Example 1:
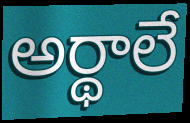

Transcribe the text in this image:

అర్థాలే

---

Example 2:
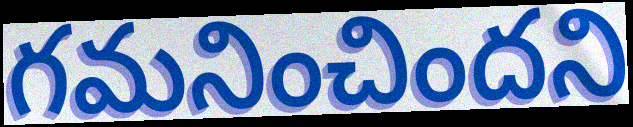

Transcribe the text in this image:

గమనించిందని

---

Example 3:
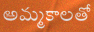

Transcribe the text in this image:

అమ్మకాలతో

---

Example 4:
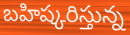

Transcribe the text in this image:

బహిష్కరిస్తున్న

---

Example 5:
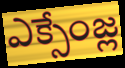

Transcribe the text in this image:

ఎక్సేంజ్ల